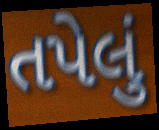
તપેલું